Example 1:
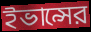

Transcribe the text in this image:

ইভান্সের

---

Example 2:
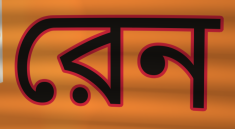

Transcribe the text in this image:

রেন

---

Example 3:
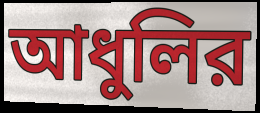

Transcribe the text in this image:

আধুলির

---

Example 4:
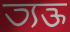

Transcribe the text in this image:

ত্যক্ত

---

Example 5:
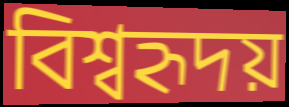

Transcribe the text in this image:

বিশ্বহৃদয়